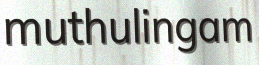
muthulingam